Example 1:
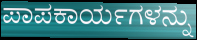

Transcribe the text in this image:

ಪಾಪಕಾರ್ಯಗಳನ್ನು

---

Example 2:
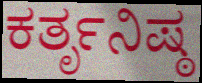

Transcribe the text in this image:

ಕರ್ತೃನಿಷ್ಠ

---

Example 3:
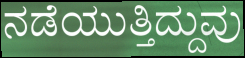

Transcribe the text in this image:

ನಡೆಯುತ್ತಿದ್ದುವು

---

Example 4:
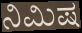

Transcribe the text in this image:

ನಿಮಿಷ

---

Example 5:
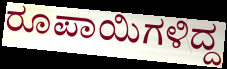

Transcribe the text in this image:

ರೂಪಾಯಿಗಳಿದ್ದ